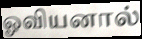
ஓவியனால்